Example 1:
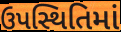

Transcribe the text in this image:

ઉપસ્થિતિમાં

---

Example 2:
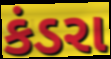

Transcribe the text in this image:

કંડરા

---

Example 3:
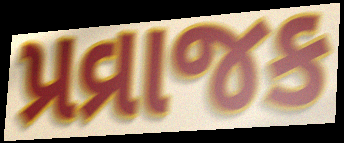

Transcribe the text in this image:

પ્રવ્રાજક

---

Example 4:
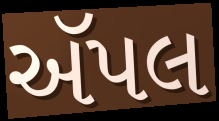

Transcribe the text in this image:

ઍપલ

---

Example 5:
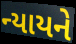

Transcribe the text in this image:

ન્યાયને